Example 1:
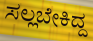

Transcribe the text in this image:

ಸಲ್ಲಬೇಕಿದ್ದ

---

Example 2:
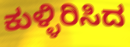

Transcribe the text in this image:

ಕುಳ್ಳಿರಿಸಿದ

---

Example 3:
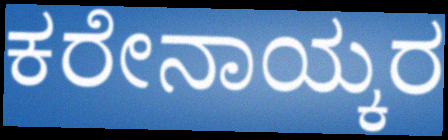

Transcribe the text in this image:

ಕರೇನಾಯ್ಕರ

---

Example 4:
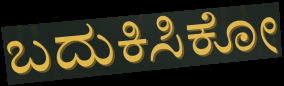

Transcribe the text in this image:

ಬದುಕಿಸಿಕೋ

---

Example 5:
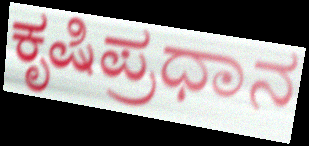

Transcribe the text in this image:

ಕೃಷಿಪ್ರಧಾನ